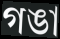
গঙা